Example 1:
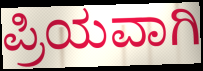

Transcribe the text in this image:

ಪ್ರಿಯವಾಗಿ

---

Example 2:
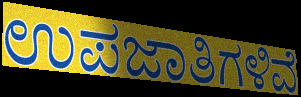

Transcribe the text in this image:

ಉಪಜಾತಿಗಳಿವೆ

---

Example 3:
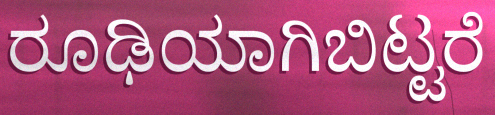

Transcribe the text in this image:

ರೂಢಿಯಾಗಿಬಿಟ್ಟರೆ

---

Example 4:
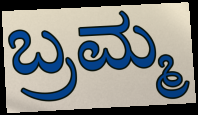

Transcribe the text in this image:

ಬ್ರಮ್ಮ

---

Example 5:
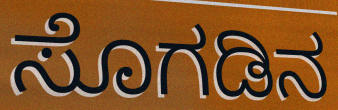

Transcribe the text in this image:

ಸೊಗಡಿನ